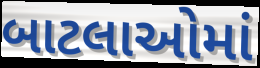
બાટલાઓમાં